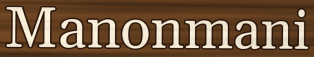
Manonmani